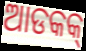
ଆଡକକ୍